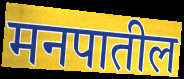
मनपातील